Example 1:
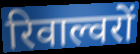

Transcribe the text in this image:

रिवाल्वरों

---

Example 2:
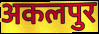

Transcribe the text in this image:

अकलपुर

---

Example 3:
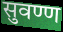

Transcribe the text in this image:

सुवण्ण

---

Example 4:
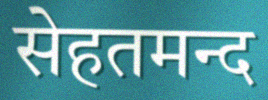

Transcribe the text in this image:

सेहतमन्द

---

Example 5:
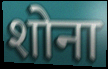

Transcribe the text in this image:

शोना